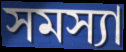
সমস্যা